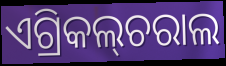
ଏଗ୍ରିକଲ୍‌ଚରାଲ